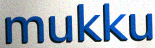
mukku